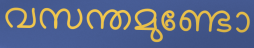
വസന്തമുണ്ടോ